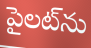
పైలట్‌ను